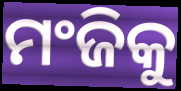
ମଂଜିକୁ